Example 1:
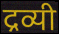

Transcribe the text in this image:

द्रव्यी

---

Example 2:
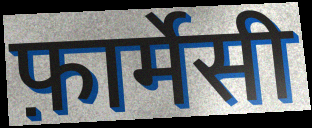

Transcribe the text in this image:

फ़ार्मेसी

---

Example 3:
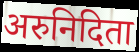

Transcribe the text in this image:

अरुनिदिता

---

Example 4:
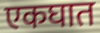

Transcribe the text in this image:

एकघात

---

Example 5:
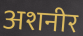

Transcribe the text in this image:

अशनीर